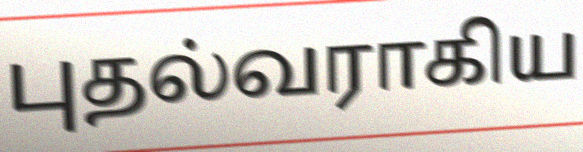
புதல்வராகிய